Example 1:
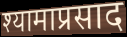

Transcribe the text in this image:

श्यामाप्रसाद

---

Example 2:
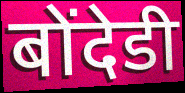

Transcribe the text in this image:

बोंदेडी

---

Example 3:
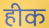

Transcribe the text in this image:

हीक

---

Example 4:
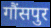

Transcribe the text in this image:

गौंसपुर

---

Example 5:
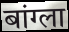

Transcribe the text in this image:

बांग्‍ला